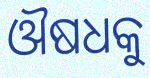
ଔଷଧକୁ